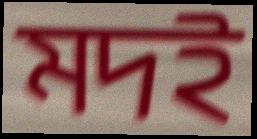
মদই